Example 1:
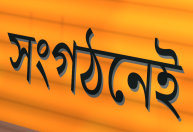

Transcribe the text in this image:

সংগঠনেই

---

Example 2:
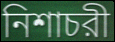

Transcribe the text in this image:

নিশাচরী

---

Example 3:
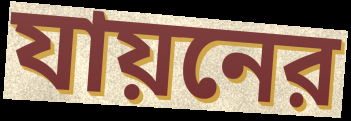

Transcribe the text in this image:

যায়নের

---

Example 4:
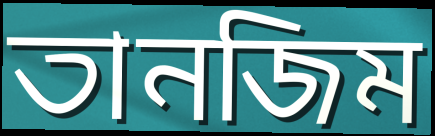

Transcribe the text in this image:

তানজিম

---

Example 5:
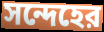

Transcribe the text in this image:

সন্দেহের